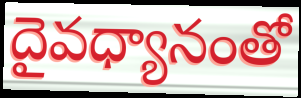
దైవధ్యానంతో